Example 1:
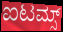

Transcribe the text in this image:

ಐಟಮ್ಸ್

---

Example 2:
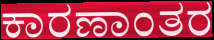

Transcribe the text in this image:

ಕಾರಣಾಂತರ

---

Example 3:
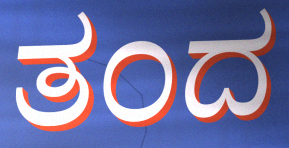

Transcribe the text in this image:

ತಂದ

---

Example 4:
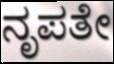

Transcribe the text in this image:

ನೃಪತೇ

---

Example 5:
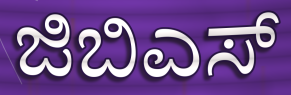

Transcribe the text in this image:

ಜಿಬಿಎಸ್